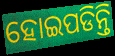
ହୋଇପଡିନ୍ତି